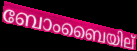
ബോംബൈയില്